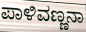
ಪಾಳಿವಣ್ಣನಾ